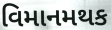
વિમાનમથક